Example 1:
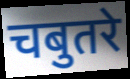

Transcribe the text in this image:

चबुतरे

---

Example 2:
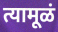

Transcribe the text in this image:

त्यामूळं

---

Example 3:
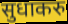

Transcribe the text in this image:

सुधाकरु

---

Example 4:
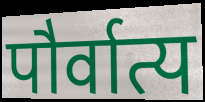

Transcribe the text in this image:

पौर्वात्य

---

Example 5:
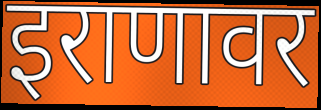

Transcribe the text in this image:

इराणावर